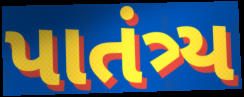
પાતંત્ર્ય